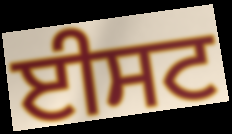
ਈਸਟ